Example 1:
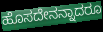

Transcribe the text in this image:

ಹೊಸದೇನನ್ನಾದರೂ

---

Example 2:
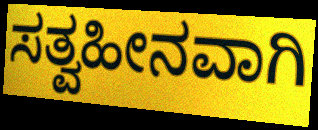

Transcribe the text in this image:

ಸತ್ವಹೀನವಾಗಿ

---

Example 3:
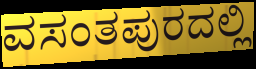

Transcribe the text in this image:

ವಸಂತಪುರದಲ್ಲಿ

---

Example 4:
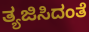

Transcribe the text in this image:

ತ್ಯಜಿಸಿದಂತೆ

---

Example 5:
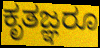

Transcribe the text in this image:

ಕೃತಜ್ಞರೂ